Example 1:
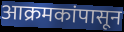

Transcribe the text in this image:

आक्रमकांपासून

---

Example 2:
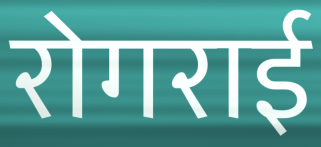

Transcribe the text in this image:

रोगराई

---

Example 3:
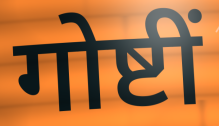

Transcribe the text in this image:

गोष्टीं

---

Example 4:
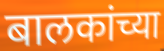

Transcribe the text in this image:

बालकांच्या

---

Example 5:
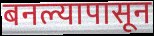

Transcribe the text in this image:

बनल्यापासून